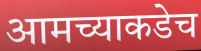
आमच्याकडेच